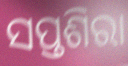
ସପ୍ତଶିରା